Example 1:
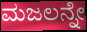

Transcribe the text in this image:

ಮಜಲನ್ನೇ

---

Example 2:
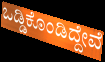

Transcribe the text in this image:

ಒಡ್ಡಿಕೊಂಡಿದ್ದೇವೆ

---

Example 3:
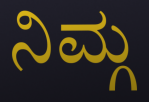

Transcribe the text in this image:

ನಿಮ್ಗ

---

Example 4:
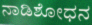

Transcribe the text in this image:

ನಾಡಿಶೋಧನ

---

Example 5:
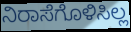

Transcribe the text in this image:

ನಿರಾಸೆಗೊಳಿಸಿಲ್ಲ